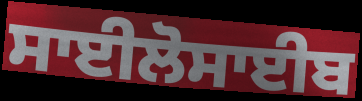
ਸਾਈਲੋਸਾਈਬ